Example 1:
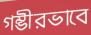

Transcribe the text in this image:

গম্ভীরভাবে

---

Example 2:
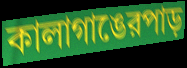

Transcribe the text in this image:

কালাগাঙেরপাড়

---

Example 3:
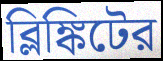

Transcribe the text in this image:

ব্লিঙ্কিটের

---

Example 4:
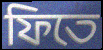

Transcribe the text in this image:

ফিতে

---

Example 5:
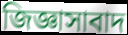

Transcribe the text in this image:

জিজ্ঞাসাবাদ